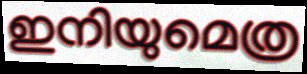
ഇനിയുമെത്ര